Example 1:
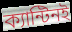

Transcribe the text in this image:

ক্যান্টিনই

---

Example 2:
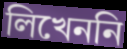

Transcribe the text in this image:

লিখেননি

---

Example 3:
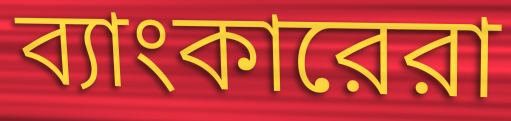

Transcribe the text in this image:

ব্যাংকারেরা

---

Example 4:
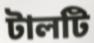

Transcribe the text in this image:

টালটি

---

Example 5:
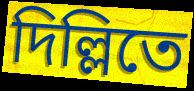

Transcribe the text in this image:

দিল্লিতে